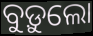
ବୁଡ଼ୁଲୋ